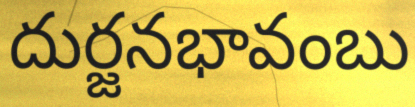
దుర్జనభావంబు